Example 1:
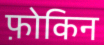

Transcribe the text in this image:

फ़ोकिन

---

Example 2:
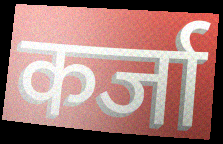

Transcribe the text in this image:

कर्जा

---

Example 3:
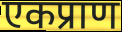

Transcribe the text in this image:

एकप्राण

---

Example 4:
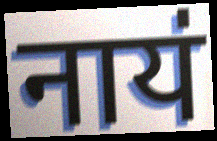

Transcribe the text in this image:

नाय॑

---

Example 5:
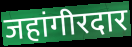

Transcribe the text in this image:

जहांगीरदार